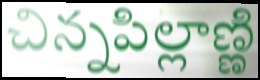
చిన్నపిల్లాణ్ణి